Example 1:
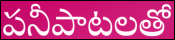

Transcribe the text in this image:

పనీపాటలతో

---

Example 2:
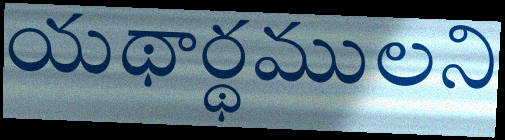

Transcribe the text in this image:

యథార్థములని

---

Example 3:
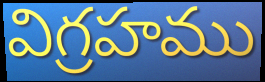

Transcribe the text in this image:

విగ్రహము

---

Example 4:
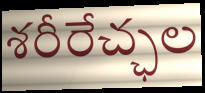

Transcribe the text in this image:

శరీరేచ్ఛల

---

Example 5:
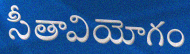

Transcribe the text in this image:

సీతావియోగం